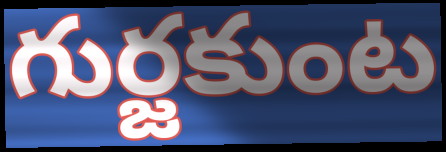
గుర్జకుంట